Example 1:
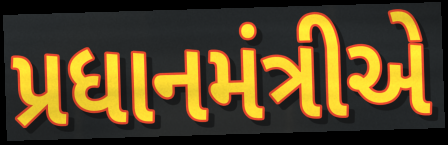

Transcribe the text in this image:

પ્રધાનમંત્રીએ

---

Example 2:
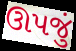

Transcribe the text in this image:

ઊપજું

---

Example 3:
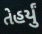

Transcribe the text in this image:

તેહર્યું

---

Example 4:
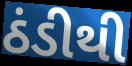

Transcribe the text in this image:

ઠંડીથી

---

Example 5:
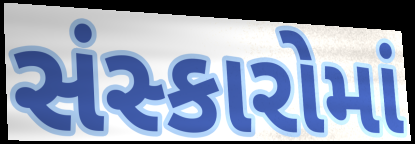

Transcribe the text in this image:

સંસ્કારોમાં